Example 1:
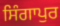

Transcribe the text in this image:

ਸਿੰਗਾਪੁਰ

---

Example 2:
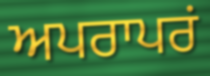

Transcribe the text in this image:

ਅਪਰਾਪਰਂ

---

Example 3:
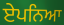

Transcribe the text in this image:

ਏਪਨਿਆ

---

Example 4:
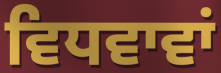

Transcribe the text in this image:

ਵਿਧਵਾਵਾਂ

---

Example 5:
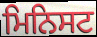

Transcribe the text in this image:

ਮਿਨਿਸਟ